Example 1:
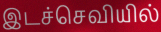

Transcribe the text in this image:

இடச்செவியில்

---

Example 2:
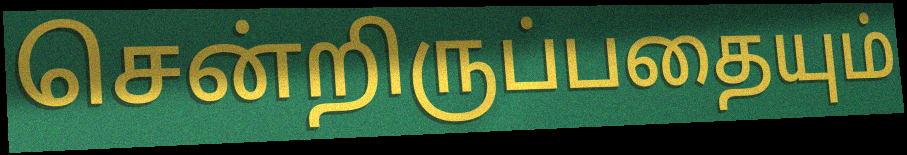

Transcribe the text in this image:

சென்றிருப்பதையும்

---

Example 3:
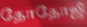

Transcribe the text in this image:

தோதோஜி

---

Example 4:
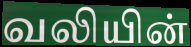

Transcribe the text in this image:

வலியின்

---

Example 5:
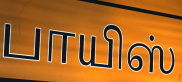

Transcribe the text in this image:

பாயிஸ்